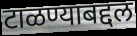
टाळण्याबद्दल